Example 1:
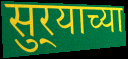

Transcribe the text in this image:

सुर्याच्या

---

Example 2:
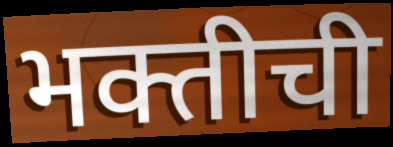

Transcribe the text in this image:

भक्‍तीची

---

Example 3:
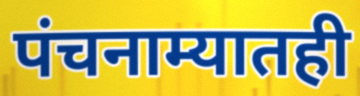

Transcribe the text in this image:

पंचनाम्यातही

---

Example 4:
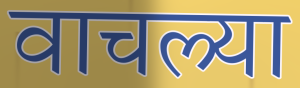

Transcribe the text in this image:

वाचल्या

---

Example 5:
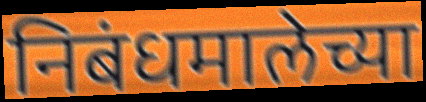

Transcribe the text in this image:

निबंधमालेच्या